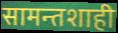
सामन्तशाही